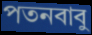
পতনবাবু